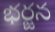
భర్జన